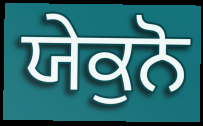
ਯੇਕੁਨੋ